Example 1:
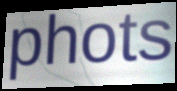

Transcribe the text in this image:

phots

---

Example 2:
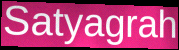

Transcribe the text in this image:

Satyagrah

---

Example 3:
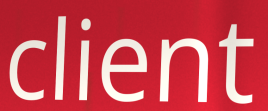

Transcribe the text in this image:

client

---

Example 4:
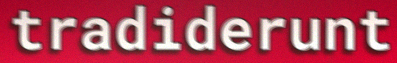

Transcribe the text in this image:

tradiderunt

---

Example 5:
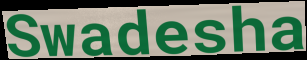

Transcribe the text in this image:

Swadesha